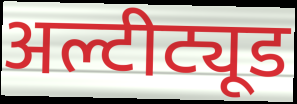
अल्टीट्यूड